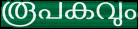
രൂപകവും